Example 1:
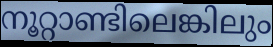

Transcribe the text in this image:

നൂറ്റാണ്ടിലെങ്കിലും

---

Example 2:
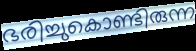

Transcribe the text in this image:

ഭരിച്ചുകൊണ്ടിരുന്ന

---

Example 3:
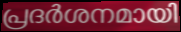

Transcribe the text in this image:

പ്രദർശനമായി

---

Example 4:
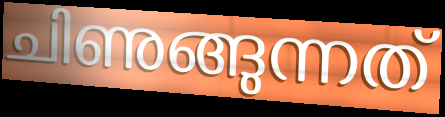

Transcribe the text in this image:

ചിണുങ്ങുന്നത്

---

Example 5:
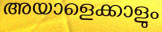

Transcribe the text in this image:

അയാളെക്കാളും